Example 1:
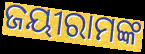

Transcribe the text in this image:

ଜୟୀରାମଙ୍କ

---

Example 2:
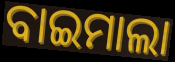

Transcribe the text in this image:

ବାଇମାଲା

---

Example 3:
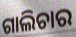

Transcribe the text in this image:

ଗାଲିଚାର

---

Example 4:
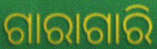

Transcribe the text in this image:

ଗାରାଗାରି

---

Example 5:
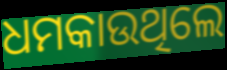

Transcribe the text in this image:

ଧମକାଉଥିଲେ